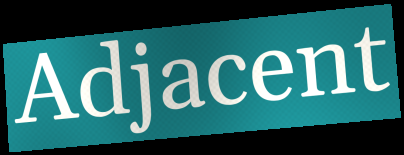
Adjacent